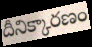
దీనిక్కారణం